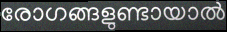
രോഗങ്ങളുണ്ടായാൽ